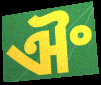
ଐଂ